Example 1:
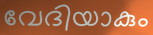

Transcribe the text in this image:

വേദിയാകും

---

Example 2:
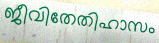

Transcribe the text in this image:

ജീവിതേതിഹാസം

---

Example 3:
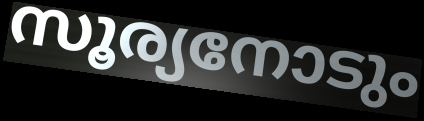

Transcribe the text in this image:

സൂര്യനോടും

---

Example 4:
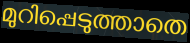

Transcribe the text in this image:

മുറിപ്പെടുത്താതെ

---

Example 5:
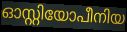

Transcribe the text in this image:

ഓസ്റ്റിയോപീനിയ